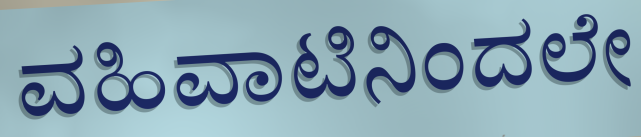
ವಹಿವಾಟಿನಿಂದಲೇ